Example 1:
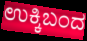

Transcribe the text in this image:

ಉಕ್ಕಿಬಂದ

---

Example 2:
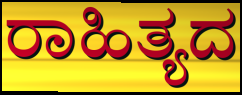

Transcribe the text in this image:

ರಾಹಿತ್ಯದ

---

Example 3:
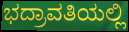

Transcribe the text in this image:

ಭದ್ರಾವತಿಯಲ್ಲಿ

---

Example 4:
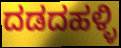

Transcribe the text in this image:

ದಡದಹಳ್ಳಿ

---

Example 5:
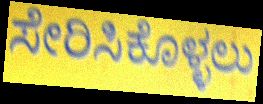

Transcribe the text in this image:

ಸೇರಿಸಿಕೊಳ್ಳಲು